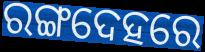
ରଙ୍ଗଦେହରେ